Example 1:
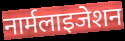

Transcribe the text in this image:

नार्मलाइजेशन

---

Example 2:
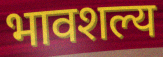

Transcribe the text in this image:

भावशल्य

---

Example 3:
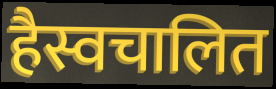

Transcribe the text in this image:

हैस्वचालित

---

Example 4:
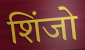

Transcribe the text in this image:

शिंजो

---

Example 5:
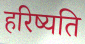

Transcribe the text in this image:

हरिष्यति